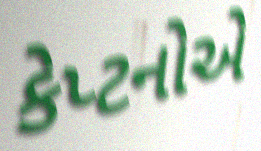
કેપ્ટનોએ